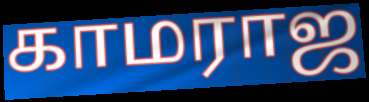
காமராஜ